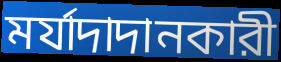
মর্যাদাদানকারী